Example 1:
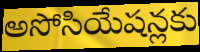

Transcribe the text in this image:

అసోసియేషన్లకు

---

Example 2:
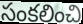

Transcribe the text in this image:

సంకలించి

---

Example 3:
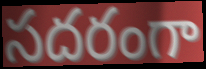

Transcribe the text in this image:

సదరంగా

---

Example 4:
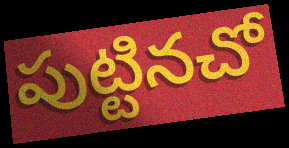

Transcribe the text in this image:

పుట్టినచో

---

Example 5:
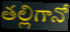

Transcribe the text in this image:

తల్లిగానో